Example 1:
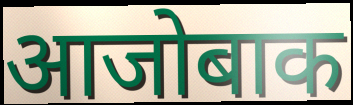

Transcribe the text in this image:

आजोबाक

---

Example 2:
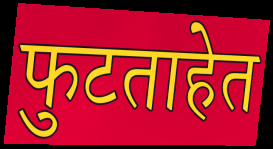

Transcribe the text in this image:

फुटताहेत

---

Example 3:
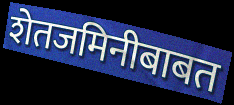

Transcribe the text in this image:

शेतजमिनीबाबत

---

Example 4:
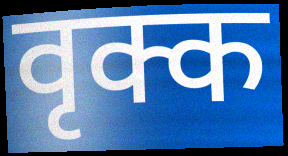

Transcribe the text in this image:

वृक्क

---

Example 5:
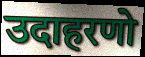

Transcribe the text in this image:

उदाहरणो